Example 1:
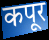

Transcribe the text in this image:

कपूर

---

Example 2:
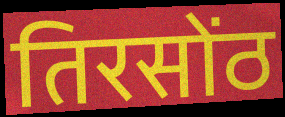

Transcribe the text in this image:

तिरसोंठ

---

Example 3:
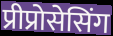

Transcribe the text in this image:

प्रीप्रोसेसिंग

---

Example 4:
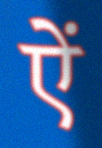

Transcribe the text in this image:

ऐं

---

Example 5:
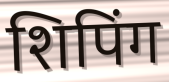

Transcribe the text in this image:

शिपिंग